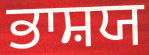
ਭਾਸ਼ਯ